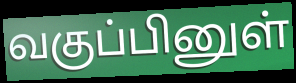
வகுப்பினுள்